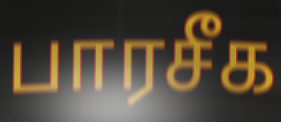
பாரசீக